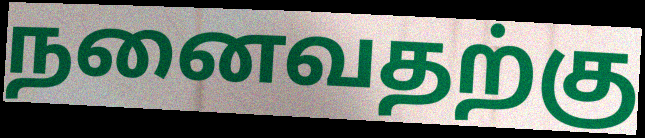
நனைவதற்கு